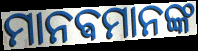
ମାନଵମାନଙ୍କ